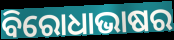
ବିରୋଧାଭାଷର